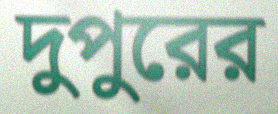
দুপুরের